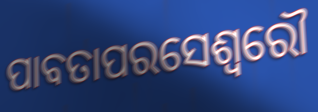
ପାବତାପରସେଶ୍ୱରୌ